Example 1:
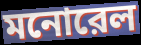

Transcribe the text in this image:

মনোরেল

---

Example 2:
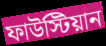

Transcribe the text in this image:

ফাউস্টিয়ান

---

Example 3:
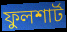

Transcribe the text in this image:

ফুলশার্ট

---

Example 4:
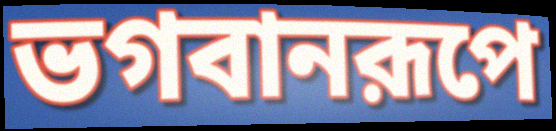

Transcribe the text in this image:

ভগবানরূপে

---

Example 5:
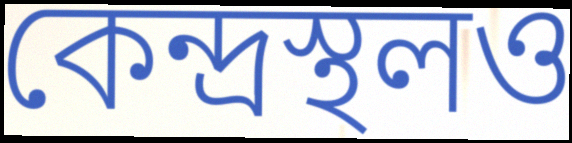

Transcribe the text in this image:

কেন্দ্রস্থলও